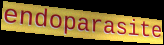
endoparasite